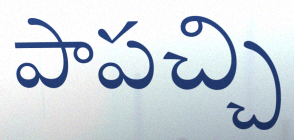
పాపచ్చి